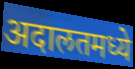
अदालतमध्ये